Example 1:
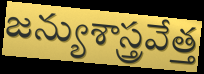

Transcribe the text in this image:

జన్యుశాస్త్రవేత్త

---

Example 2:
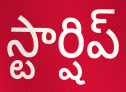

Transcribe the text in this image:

స్టార్షిప్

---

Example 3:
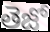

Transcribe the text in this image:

తెజో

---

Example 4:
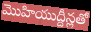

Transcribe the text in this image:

మొహియుద్దీన్లతో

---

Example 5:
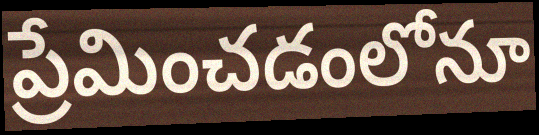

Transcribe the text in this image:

ప్రేమించడంలోనూ